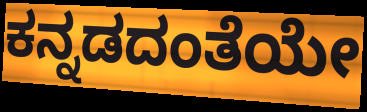
ಕನ್ನಡದಂತೆಯೇ